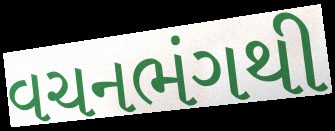
વચનભંગથી